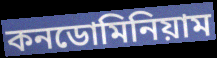
কনডোমিনিয়াম